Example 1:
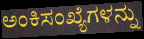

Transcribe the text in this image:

ಅಂಕಿಸಂಖ್ಯೆಗಳನ್ನು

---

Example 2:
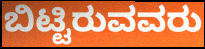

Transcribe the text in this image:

ಬಿಟ್ಟಿರುವವರು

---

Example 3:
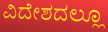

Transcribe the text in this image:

ವಿದೇಶದಲ್ಲೂ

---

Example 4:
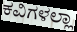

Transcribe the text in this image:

ಕವಿಗಳಲ್ಲಾ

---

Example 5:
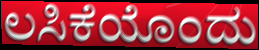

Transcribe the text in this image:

ಲಸಿಕೆಯೊಂದು